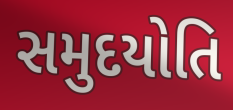
સમુદયોતિ